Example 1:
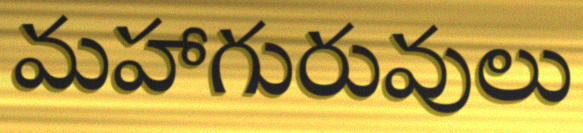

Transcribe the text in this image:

మహాగురువులు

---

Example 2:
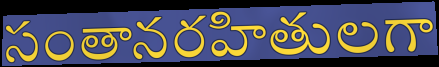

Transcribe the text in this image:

సంతానరహితులగా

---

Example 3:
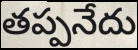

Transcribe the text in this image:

తప్పనేదు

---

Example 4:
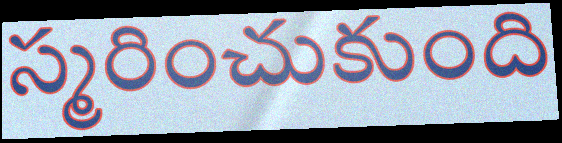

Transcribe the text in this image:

స్మరించుకుంది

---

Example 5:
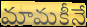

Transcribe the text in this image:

మామకీనే